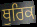
ਥੁਰਿਕ